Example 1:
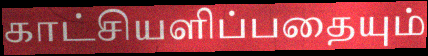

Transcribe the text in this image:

காட்சியளிப்பதையும்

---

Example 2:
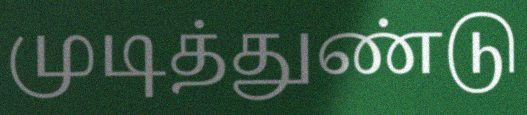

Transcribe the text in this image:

முடித்துண்டு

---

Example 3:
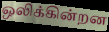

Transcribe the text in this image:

ஒலிக்கின்றன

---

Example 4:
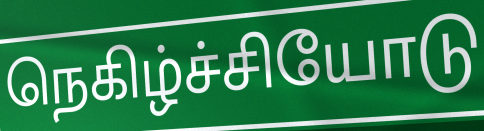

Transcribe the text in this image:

நெகிழ்ச்சியோடு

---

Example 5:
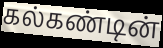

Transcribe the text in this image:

கல்கண்டின்